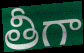
తీగా